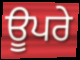
ਊਪਰੇ